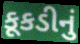
કૂકડીનું